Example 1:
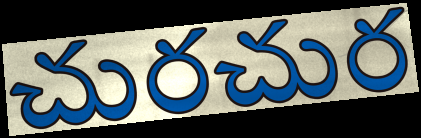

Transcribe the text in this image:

చురచుర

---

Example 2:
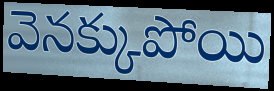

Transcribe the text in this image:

వెనక్కుపోయి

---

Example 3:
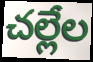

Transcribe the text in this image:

చల్లేల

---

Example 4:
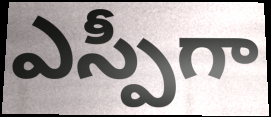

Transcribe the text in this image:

ఎస్పీగా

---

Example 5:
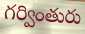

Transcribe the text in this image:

గర్వింతురు